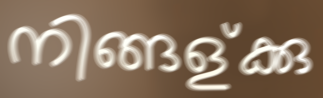
നിങ്ങള്ക്കു